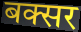
बक्‍सर